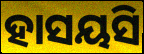
ହାସୟସି